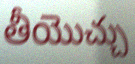
తీయొచ్చు